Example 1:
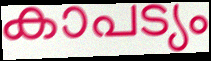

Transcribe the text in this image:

കാപട്യം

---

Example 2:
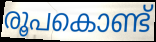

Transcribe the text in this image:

രൂപകൊണ്ട്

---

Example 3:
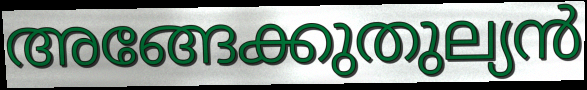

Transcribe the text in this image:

അങ്ങേക്കുതുല്യൻ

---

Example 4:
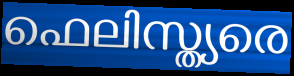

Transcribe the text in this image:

ഫെലിസ്ത്യരെ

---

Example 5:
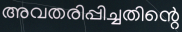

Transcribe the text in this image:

അവതരിപ്പിച്ചതിന്റെ